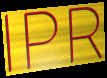
IPR